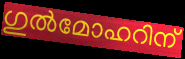
ഗുൽമോഹറിന്